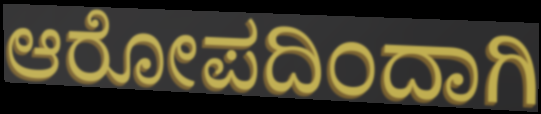
ಆರೋಪದಿಂದಾಗಿ